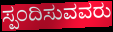
ಸ್ಪಂದಿಸುವವರು